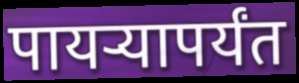
पायऱ्यापर्यंत